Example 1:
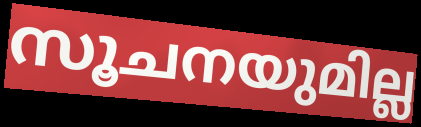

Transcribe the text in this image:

സൂചനയുമില്ല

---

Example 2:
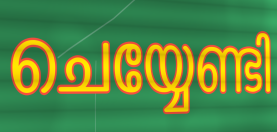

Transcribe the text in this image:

ചെയ്യേണ്ടി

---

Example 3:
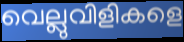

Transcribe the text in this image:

വെല്ലുവിളികളെ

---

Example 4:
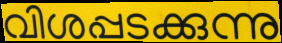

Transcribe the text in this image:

വിശപ്പടക്കുന്നു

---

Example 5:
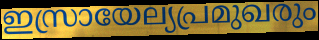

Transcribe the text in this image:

ഇസ്രായേല്യപ്രമുഖരും